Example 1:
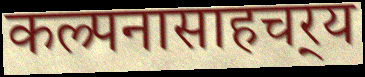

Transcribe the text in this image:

कल्पनासाहचर्य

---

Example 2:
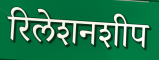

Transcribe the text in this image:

रिलेशनशीप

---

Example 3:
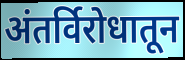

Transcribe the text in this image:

अंतर्विरोधातून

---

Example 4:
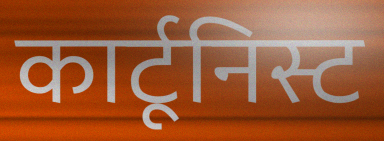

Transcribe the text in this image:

कार्टूनिस्ट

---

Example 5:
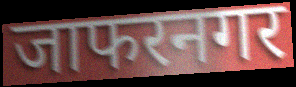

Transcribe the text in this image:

जाफरनगर